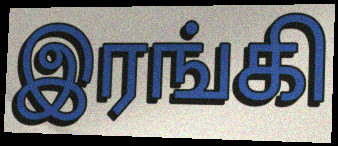
இரங்கி